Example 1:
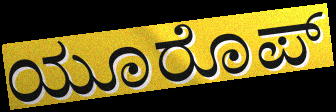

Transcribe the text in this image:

ಯೂರೊಪ್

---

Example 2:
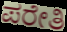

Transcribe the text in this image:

ಪರೇತಿ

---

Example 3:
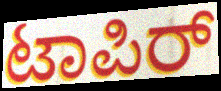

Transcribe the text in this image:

ಟಾಪಿರ್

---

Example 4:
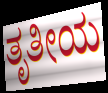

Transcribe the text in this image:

ತೃತೀಯ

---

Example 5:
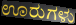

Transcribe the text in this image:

ಊರುಗಳು